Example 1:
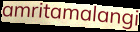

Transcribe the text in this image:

amritamalangi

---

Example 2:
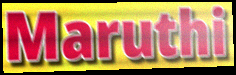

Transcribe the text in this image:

Maruthi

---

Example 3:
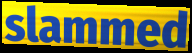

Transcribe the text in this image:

slammed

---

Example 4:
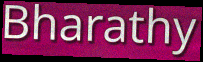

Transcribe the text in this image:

Bharathy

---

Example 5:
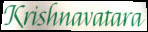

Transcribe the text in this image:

Krishnavatara